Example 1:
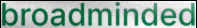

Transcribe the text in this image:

broadminded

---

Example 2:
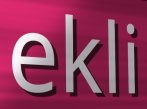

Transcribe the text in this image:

ekli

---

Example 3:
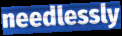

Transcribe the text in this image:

needlessly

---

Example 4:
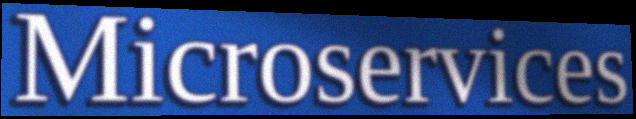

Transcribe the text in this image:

Microservices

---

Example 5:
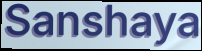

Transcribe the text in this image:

Sanshaya